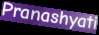
Pranashyati